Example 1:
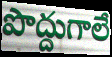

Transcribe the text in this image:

పొద్దుగాలే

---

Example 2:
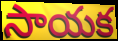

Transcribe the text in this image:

సాయక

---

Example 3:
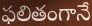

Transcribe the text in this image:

ఫలితంగానే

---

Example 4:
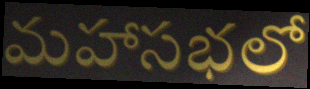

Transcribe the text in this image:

మహాసభలో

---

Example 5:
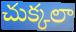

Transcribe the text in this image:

చుక్కలా